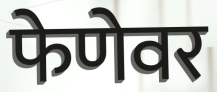
फेणेवर